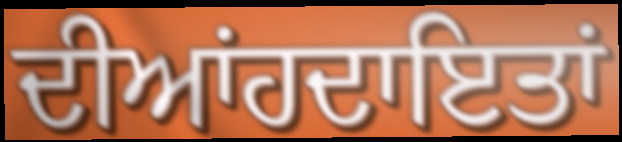
ਦੀਆਂਹਦਾਇਤਾਂ